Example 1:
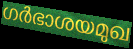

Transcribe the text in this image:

ഗർഭാശയമുഖ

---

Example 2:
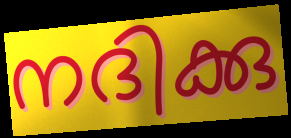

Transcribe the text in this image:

നദിക്കു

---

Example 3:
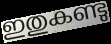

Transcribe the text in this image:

ഇതുകണ്ടു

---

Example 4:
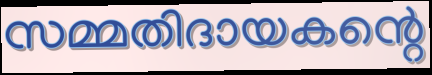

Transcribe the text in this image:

സമ്മതിദായകന്റെ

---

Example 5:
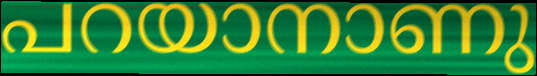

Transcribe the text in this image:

പറയാനാണു